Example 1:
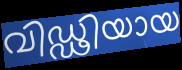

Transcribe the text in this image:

വിഡ്ഢിയായ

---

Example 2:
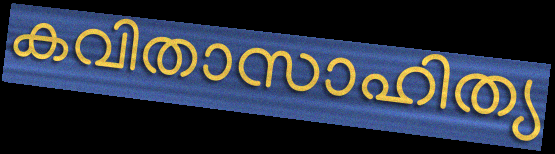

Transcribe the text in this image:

കവിതാസാഹിത്യ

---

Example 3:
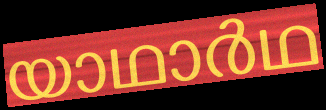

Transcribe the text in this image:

യാഥാർഥ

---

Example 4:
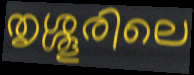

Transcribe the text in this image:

തൃശ്ശൂരിലെ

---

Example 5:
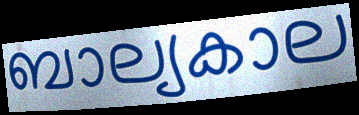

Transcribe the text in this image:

ബാല്യകാല